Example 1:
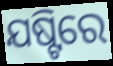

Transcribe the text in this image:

ଯଷ୍ଟିରେ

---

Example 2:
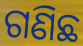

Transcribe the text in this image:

ଗଣିଛ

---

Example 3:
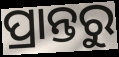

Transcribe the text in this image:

ପ୍ରାନ୍ତରୁ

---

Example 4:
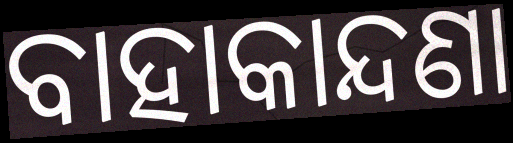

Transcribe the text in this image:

ବାହାକାନ୍ଦଣା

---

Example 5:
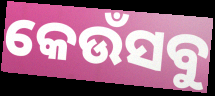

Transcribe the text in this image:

କେଉଁସବୁ